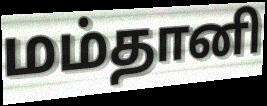
மம்தானி